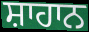
ਸ਼ਾਹਾਨ